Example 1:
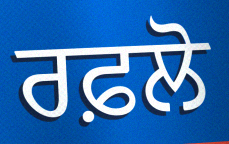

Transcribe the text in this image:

ਰਫ਼ਲੋ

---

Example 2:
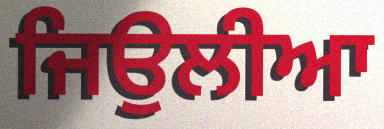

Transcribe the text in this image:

ਜਿਉਲੀਆ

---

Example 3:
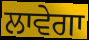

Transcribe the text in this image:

ਲਾਵੇਗਾ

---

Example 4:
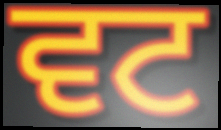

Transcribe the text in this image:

ਵਟ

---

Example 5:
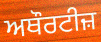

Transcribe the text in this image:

ਅਥੌਰਟੀਜ਼